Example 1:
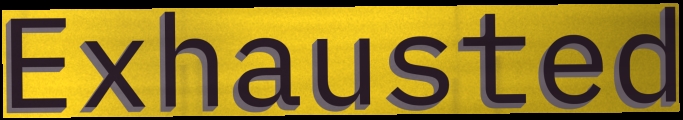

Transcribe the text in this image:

Exhausted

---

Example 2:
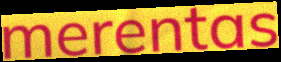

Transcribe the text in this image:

merentas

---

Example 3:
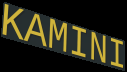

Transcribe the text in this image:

KAMINI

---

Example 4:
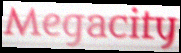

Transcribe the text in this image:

Megacity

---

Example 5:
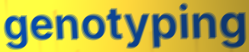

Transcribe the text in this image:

genotyping